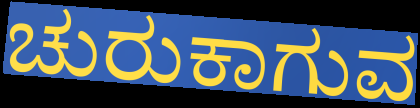
ಚುರುಕಾಗುವ